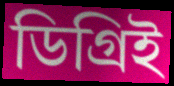
ডিগ্রিই